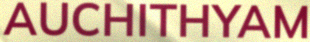
AUCHITHYAM